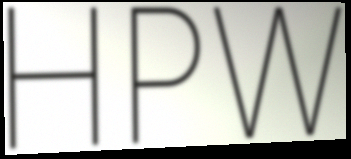
HPW